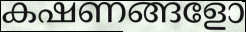
കഷണങ്ങളോ